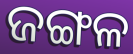
ଜଙ୍ଗଳ